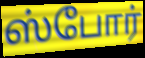
ஸ்போர்